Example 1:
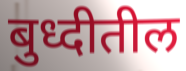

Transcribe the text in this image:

बुध्दीतील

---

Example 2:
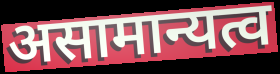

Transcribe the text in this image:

असामान्यत्व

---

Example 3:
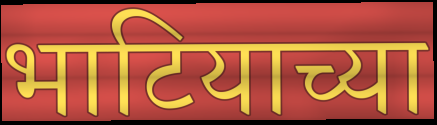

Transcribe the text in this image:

भाटियाच्या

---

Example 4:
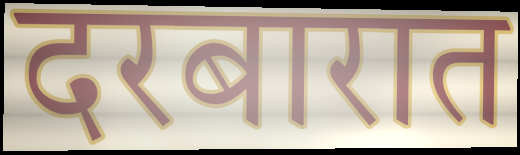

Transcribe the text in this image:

दरबारात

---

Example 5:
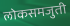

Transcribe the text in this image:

लोकसमजुती